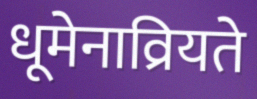
धूमेनाव्रियते